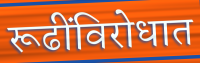
रूढींविरोधात